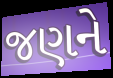
જણને